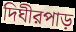
দিঘীরপাড়